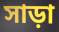
সাড়া